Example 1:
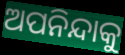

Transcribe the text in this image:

ଅପନିନ୍ଦାକୁ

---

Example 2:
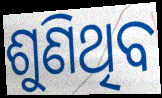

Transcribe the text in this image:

ଶୁଣିଥିବ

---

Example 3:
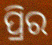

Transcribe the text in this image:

ପ୍ରିର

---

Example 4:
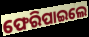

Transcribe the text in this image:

ଫେରିପାଇଲେ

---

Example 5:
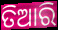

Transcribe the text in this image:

ତିଆରି